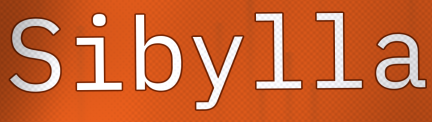
Sibylla